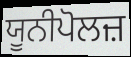
ਯੂਨੀਪੋਲਜ਼